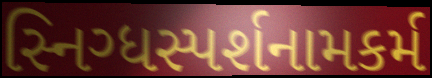
સ્નિગ્ધસ્પર્શનામકર્મ